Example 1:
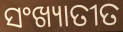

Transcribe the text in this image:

ସଂଖ୍ୟାତୀତ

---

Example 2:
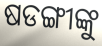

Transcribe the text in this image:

ଷଡଙ୍ଗୀଙ୍କୁ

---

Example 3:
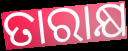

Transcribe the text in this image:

ତାରାକ୍ଷ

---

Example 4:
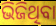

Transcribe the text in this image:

ଭିଜିଥିବା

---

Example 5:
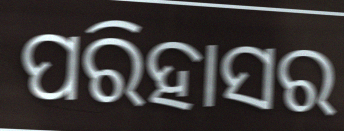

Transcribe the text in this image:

ପରିହାସର